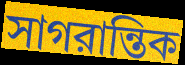
সাগরান্তিক